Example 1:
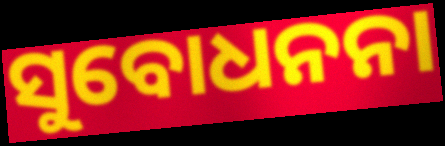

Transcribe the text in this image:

ସୁବୋଧନନା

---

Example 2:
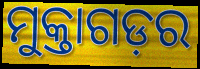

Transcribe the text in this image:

ମୁକ୍ତାଗଡ଼ର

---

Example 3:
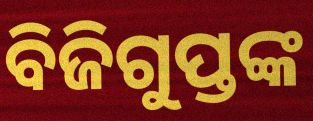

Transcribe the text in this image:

ବିଜିଗୁପ୍ତଙ୍କ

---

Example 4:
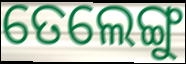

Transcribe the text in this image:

ତେଲେଙ୍ଗୁ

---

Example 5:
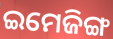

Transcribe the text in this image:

ଇମେଜିଙ୍ଗ